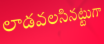
లాడవలసినట్టుగా